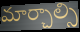
మార్చాల్సి